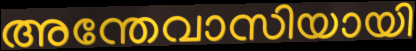
അന്തേവാസിയായി